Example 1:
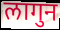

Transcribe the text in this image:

लागुन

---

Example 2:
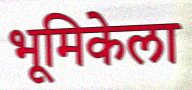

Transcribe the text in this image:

भूमिकेला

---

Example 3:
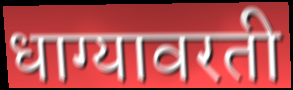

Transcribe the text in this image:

धाग्यावरती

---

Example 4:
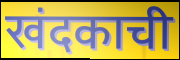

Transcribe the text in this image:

खंदकाची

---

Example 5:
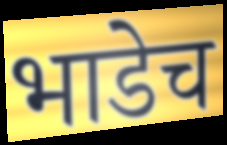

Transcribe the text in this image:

भाडेच